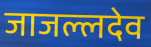
जाजल्लदेव